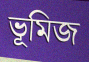
ভূমিজ